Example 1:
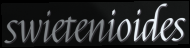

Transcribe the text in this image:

swietenioides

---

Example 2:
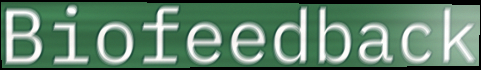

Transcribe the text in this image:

Biofeedback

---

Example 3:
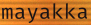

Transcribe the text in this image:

mayakka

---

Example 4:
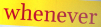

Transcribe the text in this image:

whenever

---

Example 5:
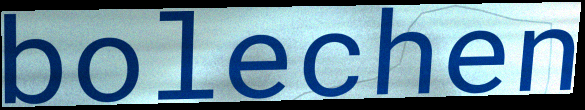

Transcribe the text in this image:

bolechen